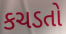
કચડતો